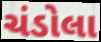
ચંડોલા